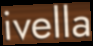
ivella